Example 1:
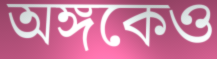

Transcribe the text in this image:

অঙ্গকেও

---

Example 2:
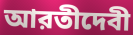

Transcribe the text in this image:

আরতীদেবী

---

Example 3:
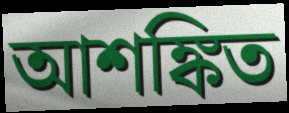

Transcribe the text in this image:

আশঙ্কিত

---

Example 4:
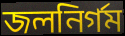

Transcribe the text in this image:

জলনির্গম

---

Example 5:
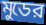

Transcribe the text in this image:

মুডের